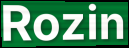
Rozin